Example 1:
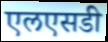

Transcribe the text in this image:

एलएसडी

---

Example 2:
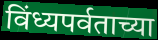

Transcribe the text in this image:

विंध्यपर्वताच्या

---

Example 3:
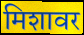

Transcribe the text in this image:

मिशावर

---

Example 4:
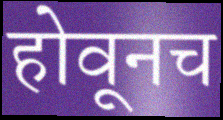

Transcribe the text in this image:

होवूनच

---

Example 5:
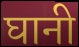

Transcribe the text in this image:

घानी